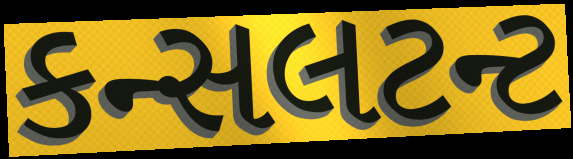
કન્સલટન્ટ